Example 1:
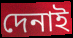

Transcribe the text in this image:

দেনাই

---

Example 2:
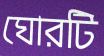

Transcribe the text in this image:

ঘোরটি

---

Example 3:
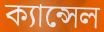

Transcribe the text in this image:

ক্যান্সেল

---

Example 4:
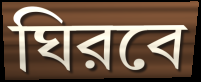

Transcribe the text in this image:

ঘিরবে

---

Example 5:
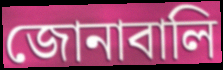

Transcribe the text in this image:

জোনাবালি